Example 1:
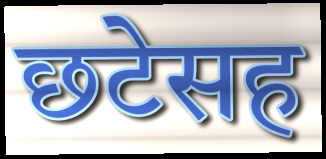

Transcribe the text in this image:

छटेसह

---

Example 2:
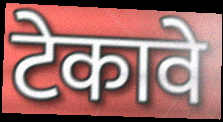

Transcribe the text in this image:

टेकावे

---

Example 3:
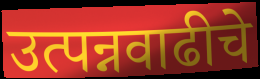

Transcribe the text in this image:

उत्पन्नवाढीचे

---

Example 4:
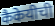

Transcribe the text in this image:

कैकेयीची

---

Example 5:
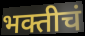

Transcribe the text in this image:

भक्तीचं